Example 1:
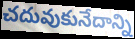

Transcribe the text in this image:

చదువుకునేదాన్ని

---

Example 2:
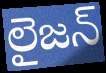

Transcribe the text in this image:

లైజన్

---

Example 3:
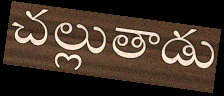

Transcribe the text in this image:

చల్లుతాడు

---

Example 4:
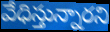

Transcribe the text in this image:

వేధిస్తున్నారని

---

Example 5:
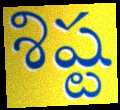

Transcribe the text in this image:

శిష్ట